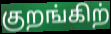
குறங்கிற்